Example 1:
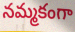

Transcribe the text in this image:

నమ్మకంగా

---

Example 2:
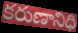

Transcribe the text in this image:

కరుణానిధి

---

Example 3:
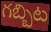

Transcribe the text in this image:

గబ్బిట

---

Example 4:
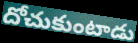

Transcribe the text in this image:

దోచుకుంటాడు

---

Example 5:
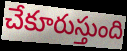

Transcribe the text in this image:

చేకూరుస్తుంది